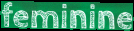
feminine